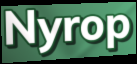
Nyrop